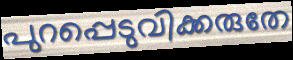
പുറപ്പെടുവിക്കരുതേ